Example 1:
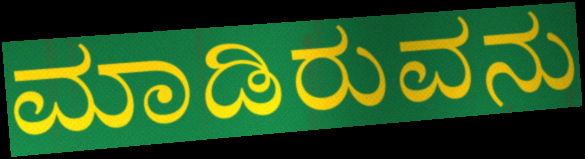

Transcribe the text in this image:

ಮಾಡಿರುವನು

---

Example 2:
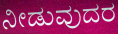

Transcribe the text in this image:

ನೀಡುವುದರ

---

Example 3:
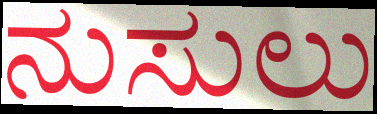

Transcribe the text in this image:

ನುಸುಲು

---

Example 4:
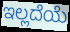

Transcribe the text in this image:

ಇಲ್ಲದೆಯೆ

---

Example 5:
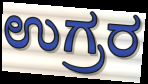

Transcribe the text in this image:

ಉಗ್ರರ